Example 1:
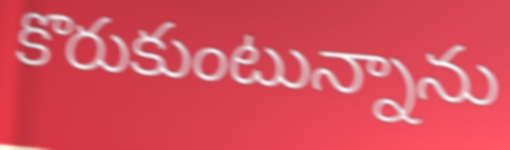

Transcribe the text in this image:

కొరుకుంటున్నాను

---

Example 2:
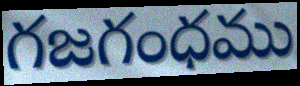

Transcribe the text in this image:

గజగంధము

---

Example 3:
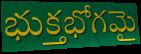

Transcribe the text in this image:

భుక్తభోగమై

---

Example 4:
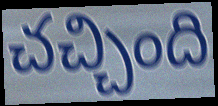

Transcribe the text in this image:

చచ్చింది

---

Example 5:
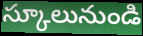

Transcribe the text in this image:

స్కూలునుండి